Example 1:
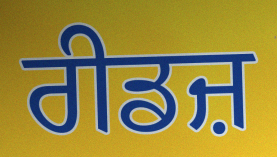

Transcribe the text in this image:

ਰੀਡਜ਼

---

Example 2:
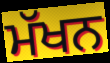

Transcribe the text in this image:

ਮੱਖਨ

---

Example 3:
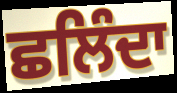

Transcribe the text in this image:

ਛਲਿੰਦਾ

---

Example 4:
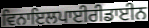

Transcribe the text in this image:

ਵਿਨਾਇਲਪਾਈਰੀਡਾਈਨ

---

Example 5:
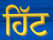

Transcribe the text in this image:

ਹਿੱਟ